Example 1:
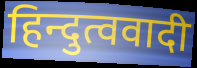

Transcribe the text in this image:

हिन्दुत्ववादी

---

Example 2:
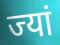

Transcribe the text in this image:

ज्यां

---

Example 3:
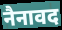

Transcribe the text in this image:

नैनावद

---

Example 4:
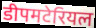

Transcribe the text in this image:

डीपमटेरियल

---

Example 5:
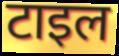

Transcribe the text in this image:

टाइल